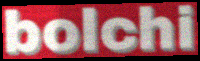
bolchi